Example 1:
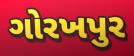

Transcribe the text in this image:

ગોરખપુર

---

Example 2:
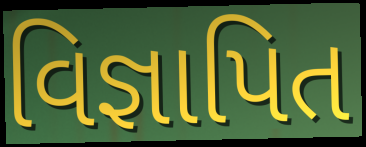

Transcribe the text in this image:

વિજ્ઞાપિત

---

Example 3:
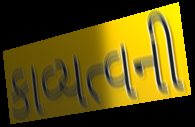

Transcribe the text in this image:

કાવ્યત્વની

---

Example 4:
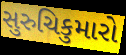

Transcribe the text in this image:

સુરુચિકુમારો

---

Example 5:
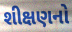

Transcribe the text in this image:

શીક્ષણનો